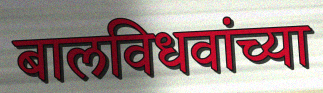
बालविधवांच्या